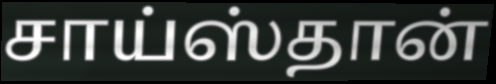
சாய்ஸ்தான்